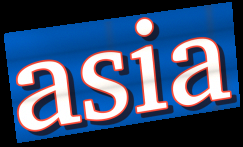
asia